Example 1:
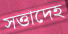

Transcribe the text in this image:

সত্তাদেহ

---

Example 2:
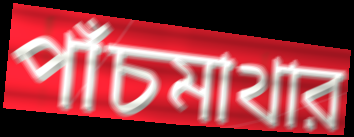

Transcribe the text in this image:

পাঁচমাথার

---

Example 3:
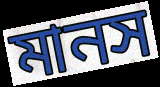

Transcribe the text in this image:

মানস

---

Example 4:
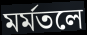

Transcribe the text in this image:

মর্মতলে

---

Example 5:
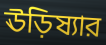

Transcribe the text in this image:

ঊড়িষ্যার